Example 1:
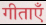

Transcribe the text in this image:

गीताएँ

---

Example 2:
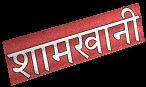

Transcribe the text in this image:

शामखानी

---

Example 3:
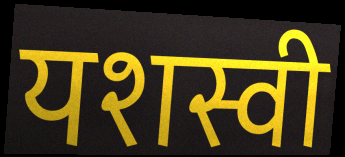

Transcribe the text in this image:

यशस्वी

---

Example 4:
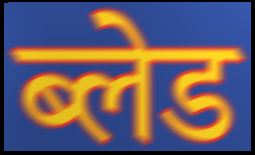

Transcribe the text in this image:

ब्लेड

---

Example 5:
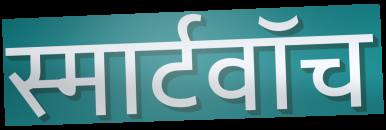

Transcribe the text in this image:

स्मार्टवॉच